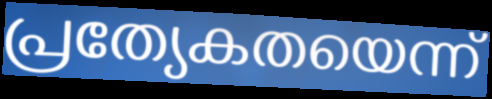
പ്രത്യേകതയെന്ന്